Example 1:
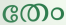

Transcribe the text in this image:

തേം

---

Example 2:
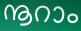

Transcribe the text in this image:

നൂറാം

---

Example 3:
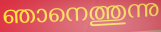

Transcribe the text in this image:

ഞാനെത്തുന്നു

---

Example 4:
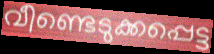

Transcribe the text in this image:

വീണ്ടെടുക്കപ്പെട്ട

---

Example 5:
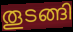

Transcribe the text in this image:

തൂടങ്ങി